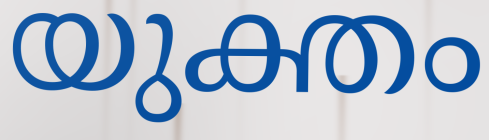
യുക്തം